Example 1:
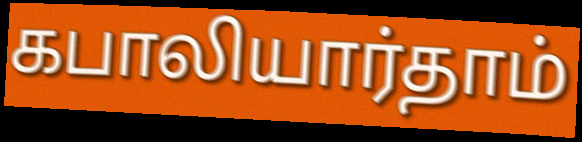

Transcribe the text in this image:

கபாலியார்தாம்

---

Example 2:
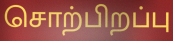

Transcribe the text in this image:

சொற்பிறப்பு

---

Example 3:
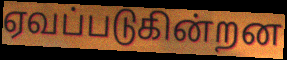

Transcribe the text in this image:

ஏவப்படுகின்றன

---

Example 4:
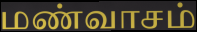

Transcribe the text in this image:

மண்வாசம்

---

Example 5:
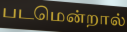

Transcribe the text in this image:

படமென்றால்